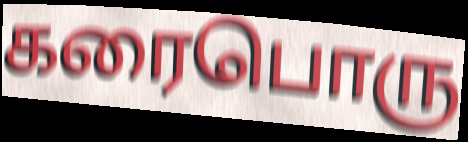
கரைபொரு